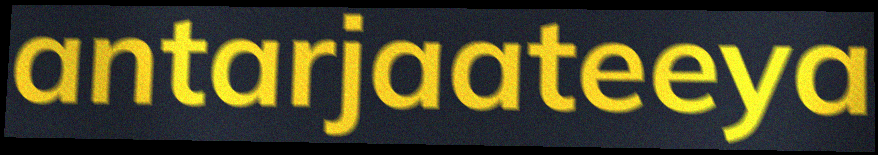
antarjaateeya